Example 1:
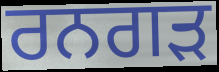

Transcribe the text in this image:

ਰਨਗੜ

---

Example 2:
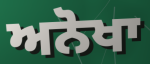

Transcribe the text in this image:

ਅਨੋਖਾ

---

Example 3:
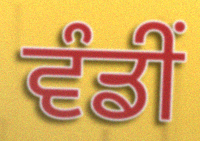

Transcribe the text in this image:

ਵੰਡੀਂ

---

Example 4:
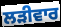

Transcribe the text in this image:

ਲੜੀਵਾਰ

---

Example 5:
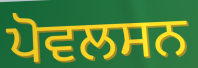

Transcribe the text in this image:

ਪੋਵਲਸਨ